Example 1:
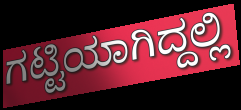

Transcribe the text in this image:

ಗಟ್ಟಿಯಾಗಿದ್ದಲ್ಲಿ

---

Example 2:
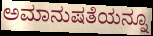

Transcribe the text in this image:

ಅಮಾನುಷತೆಯನ್ನೂ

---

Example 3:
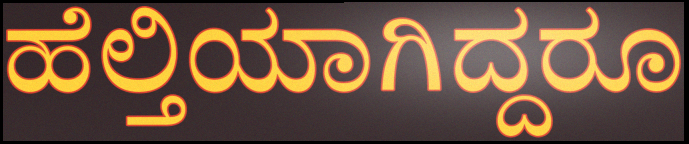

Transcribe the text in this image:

ಹೆಲ್ತಿಯಾಗಿದ್ದರೂ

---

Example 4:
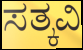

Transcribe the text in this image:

ಸತ್ಕವಿ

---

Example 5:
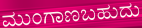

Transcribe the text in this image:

ಮುಂಗಾಣಬಹುದು